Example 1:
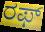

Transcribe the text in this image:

ರಫ್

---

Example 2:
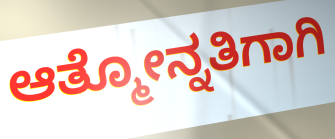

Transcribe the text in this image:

ಆತ್ಮೋನ್ನತಿಗಾಗಿ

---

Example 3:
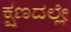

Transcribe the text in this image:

ಕ್ಷಣದಲ್ಲೇ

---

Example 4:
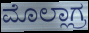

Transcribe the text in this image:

ಮೊಲ್ಲಾಗ್ರ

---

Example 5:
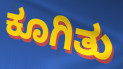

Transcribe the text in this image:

ಕೂಗಿತು